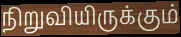
நிறுவியிருக்கும்